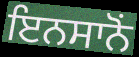
ਇਨਸਾਨੋਂ